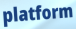
platform